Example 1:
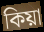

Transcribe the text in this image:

কিয়া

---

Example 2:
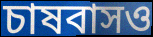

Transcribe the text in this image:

চাষবাসও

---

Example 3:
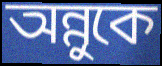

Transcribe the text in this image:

অন্নুকে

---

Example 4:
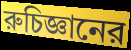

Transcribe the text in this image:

রুচিজ্ঞানের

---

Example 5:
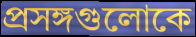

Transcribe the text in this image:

প্রসঙ্গগুলোকে